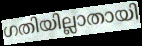
ഗതിയില്ലാതായി